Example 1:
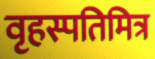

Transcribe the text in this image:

वृहस्पतिमित्र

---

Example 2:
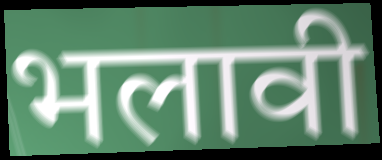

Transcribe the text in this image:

भलावी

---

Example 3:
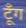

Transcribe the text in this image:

टूँग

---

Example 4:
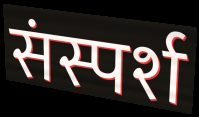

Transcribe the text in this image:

संस्पर्श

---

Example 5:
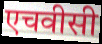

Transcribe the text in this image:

एचवीसी